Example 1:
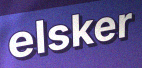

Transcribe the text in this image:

elsker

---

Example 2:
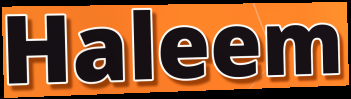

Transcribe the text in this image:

Haleem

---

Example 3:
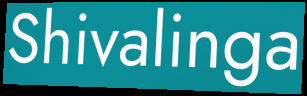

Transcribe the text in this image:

Shivalinga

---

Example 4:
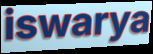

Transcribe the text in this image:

iswarya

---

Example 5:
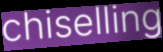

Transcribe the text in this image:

chiselling